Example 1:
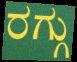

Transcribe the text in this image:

ರಗ್ಗು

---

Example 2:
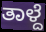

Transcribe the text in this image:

ತಾಳ್ದೆ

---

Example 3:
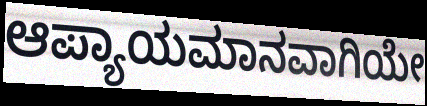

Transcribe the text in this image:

ಆಪ್ಯಾಯಮಾನವಾಗಿಯೇ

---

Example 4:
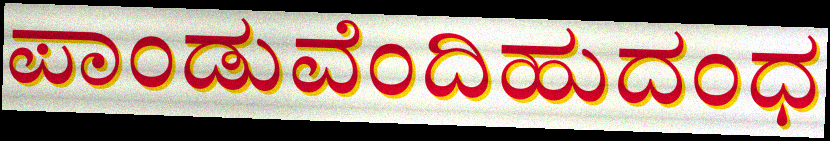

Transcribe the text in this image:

ಪಾಂಡುವೆಂದಿಹುದಂಧ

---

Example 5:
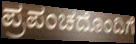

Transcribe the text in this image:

ಪ್ರಪಂಚದೊಂದಿಗೆ